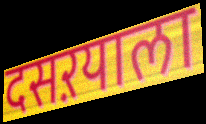
दसऱयाला